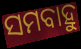
ସମବାହୁ